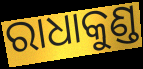
ରାଧାକୁଣ୍ଡ